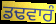
ਡਢਵਾਰੰ